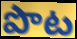
పొట